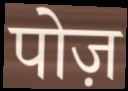
पोज़